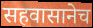
सहवासानेच